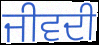
ਜੀਵਦੀ